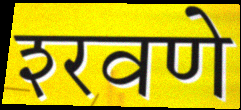
श्रवणे